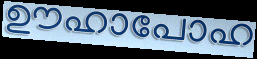
ഊഹാപോഹ